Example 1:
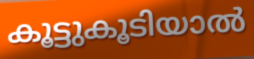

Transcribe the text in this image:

കൂട്ടുകൂടിയാൽ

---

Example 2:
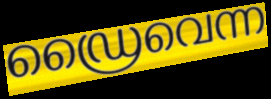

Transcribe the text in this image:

ഡ്രൈവെന്ന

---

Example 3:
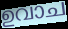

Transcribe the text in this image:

ഉവാച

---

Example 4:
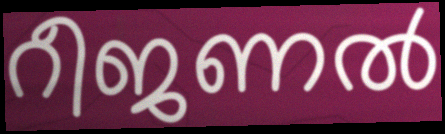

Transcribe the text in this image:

റീജണൽ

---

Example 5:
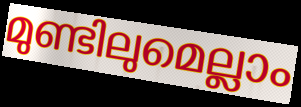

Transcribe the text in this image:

മുണ്ടിലുമെല്ലാം